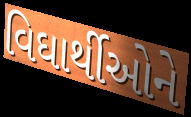
વિઘાર્થીઓને